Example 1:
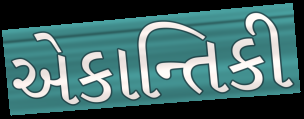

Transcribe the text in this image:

એકાન્તિકી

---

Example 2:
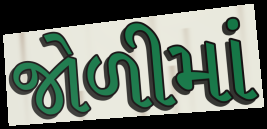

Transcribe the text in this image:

જોળીમાં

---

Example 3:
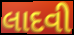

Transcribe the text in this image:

લાદવી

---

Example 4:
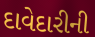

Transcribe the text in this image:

દાવેદારીની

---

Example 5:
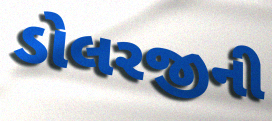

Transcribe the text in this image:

ડોલરજીની